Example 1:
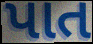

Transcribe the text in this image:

પાત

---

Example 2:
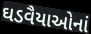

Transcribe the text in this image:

ઘડવૈયાઓનાં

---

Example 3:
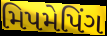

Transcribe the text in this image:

મિપમેપિંગ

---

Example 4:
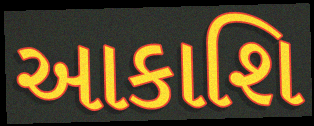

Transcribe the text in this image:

આકાશિ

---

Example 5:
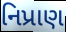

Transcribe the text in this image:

નિપ્રાણ